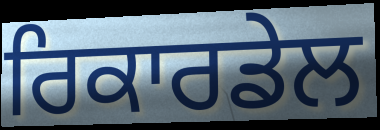
ਰਿਕਾਰਡੇਲ